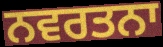
ਨਵਰਤਨਾ